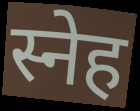
स्नेह